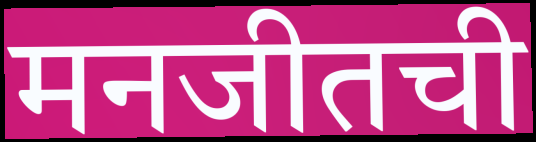
मनजीतची